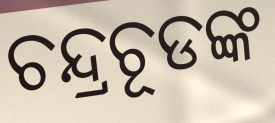
ଚନ୍ଦ୍ରଚୂଡଙ୍କ